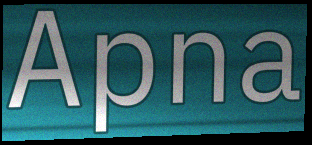
Apna